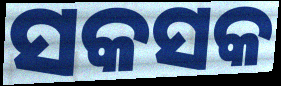
ସକସକ